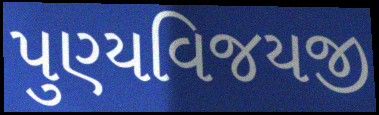
પુણ્યવિજયજી